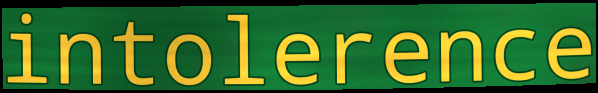
intolerence